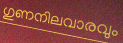
ഗുണനിലവാരവും